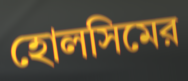
হোলসিমের